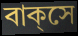
বাক্‌সে